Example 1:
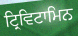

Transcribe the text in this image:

ਟ੍ਰਿਵਿਟਾਮਿਨ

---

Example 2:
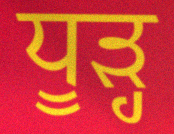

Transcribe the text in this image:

ਧੂੜ੍ਹ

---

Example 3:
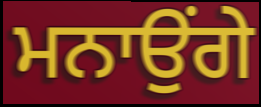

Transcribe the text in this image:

ਮਨਾਉਂਗੇ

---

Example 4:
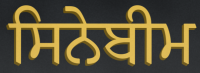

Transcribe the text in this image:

ਸਿਨੇਬੀਮ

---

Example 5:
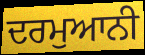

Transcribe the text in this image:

ਦਰਮੁਆਨੀ